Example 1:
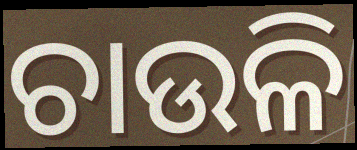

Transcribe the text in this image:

ଚାଉଳି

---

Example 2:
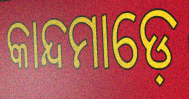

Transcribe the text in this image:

କାନ୍ଦମାଡ଼େ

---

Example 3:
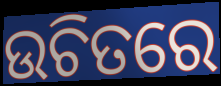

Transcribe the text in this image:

ଉଚିତରେ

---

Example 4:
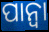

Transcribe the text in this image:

ପାନ୍ଵା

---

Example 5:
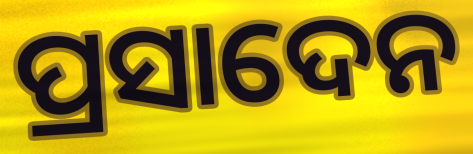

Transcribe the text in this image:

ପ୍ରସାଦେନ